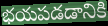
భయపడడానికి